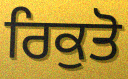
ਰਿਕੁਤੋ